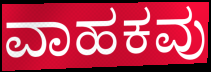
ವಾಹಕವು